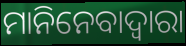
ମାନିନେବାଦ୍ୱାରା